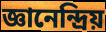
জ্ঞানেন্দ্রিয়